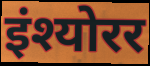
इंश्योरर